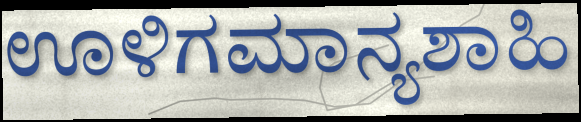
ಊಳಿಗಮಾನ್ಯಶಾಹಿ